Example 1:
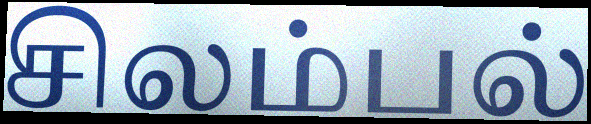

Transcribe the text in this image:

சிலம்பல்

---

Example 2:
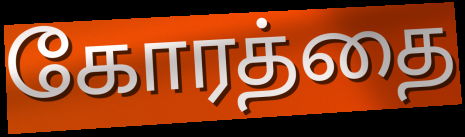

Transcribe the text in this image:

கோரத்தை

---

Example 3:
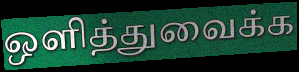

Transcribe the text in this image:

ஒளித்துவைக்க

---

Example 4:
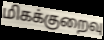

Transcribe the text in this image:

மிகக்குறைவு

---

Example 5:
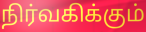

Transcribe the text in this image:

நிர்வகிக்கும்